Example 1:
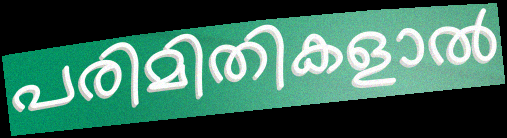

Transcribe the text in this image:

പരിമിതികളാൽ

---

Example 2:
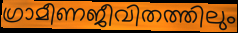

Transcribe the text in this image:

ഗ്രാമീണജീവിതത്തിലും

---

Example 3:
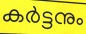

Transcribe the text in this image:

കർട്ടനും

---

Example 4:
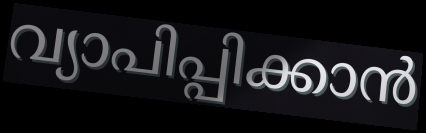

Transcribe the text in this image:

വ്യാപിപ്പിക്കാൻ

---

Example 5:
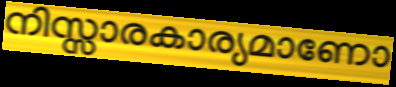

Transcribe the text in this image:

നിസ്സാരകാര്യമാണോ